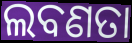
ଲବଣତା